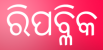
ରିପବ୍ଳିକ